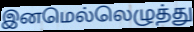
இனமெல்லெழுத்து